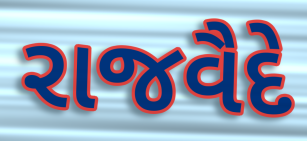
રાજવૈદે